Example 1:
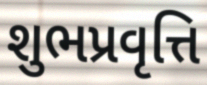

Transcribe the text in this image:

શુભપ્રવૃત્તિ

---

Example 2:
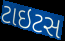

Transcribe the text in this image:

ટાઇટસ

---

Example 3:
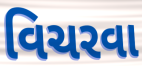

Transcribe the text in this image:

વિચરવા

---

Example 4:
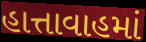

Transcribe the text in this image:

હાત્તાવાહમાં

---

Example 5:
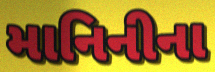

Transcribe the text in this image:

માનિનીના